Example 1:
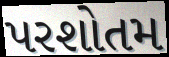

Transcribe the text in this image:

પરશોતમ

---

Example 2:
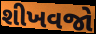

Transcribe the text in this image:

શીખવજો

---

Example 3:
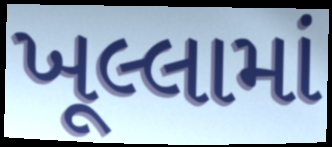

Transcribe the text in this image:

ખૂલ્લામાં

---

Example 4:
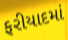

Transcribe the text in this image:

ફરીયાદમાં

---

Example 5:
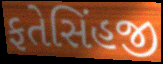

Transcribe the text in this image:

ફતેસિંહજી